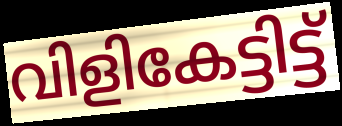
വിളികേട്ടിട്ട്